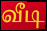
வீடி